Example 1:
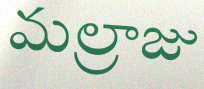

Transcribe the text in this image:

మల్రాజు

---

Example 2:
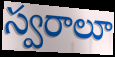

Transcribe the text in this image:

స్వరాలూ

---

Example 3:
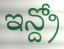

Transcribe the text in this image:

ఇన్ద్రో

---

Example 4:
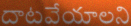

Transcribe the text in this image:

దాటవేయాలని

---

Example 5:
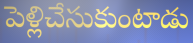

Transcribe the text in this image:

పెళ్లిచేసుకుంటాడు